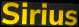
Sirius